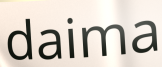
daima